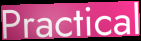
Practical